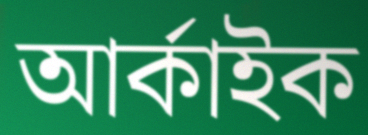
আর্কাইক